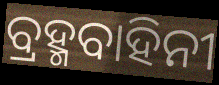
ବ୍ରହ୍ମବାହିନୀ